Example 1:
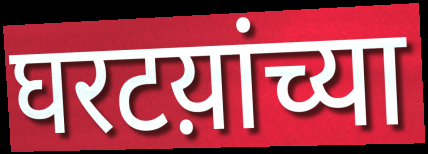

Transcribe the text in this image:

घरटय़ांच्या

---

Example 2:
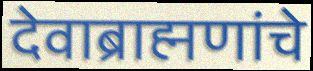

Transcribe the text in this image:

देवाब्राह्मणांचे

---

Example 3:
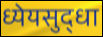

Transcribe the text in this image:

ध्येयसुद्धा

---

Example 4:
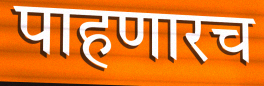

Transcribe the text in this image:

पाहणारच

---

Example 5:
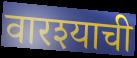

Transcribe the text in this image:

वारश्याची